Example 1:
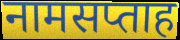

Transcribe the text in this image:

नामसप्ताह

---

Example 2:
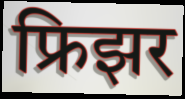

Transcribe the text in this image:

फ्रिझर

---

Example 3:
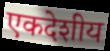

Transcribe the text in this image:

एकदेशीय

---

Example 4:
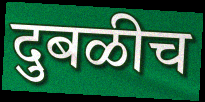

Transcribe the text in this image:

दुबळीच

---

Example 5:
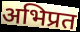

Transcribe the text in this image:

अभिप्रत